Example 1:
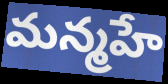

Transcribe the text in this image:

మన్మహే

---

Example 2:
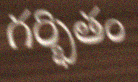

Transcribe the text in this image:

గర్భితం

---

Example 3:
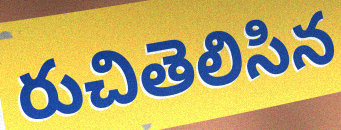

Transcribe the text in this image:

రుచితెలిసిన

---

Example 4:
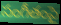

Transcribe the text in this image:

సంగీతంపై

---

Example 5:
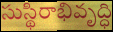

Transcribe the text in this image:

సుస్థిరాభివృద్ధి